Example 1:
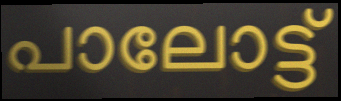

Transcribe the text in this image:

പാലോട്ട്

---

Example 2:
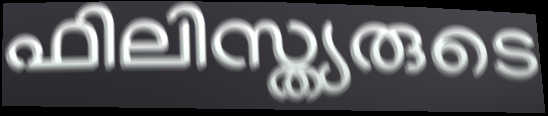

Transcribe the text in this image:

ഫിലിസ്ത്യരുടെ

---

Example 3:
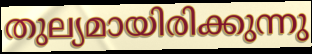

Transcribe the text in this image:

തുല്യമായിരിക്കുന്നു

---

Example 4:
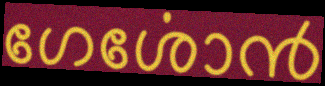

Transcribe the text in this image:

ഗേൎശോൻ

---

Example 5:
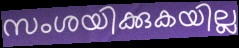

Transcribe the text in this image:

സംശയിക്കുകയില്ല